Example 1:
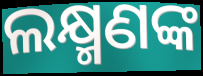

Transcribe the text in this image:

ଲକ୍ଷ୍ମଣଙ୍କ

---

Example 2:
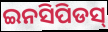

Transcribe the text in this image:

ଇନସିପିଡସ୍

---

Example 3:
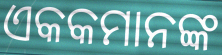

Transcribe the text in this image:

ଏକକମାନଙ୍କ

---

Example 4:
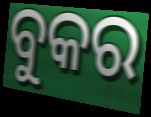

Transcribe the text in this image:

ବୁକର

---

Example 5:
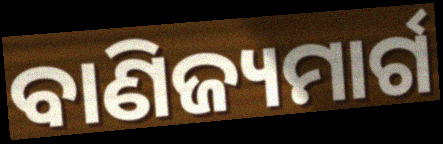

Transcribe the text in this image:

ବାଣିଜ୍ୟମାର୍ଗ